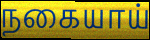
நகையாய்